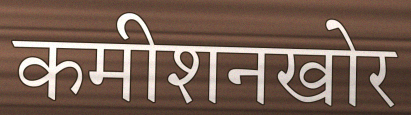
कमीशनखोर